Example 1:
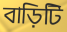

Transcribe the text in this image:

বাড়িটি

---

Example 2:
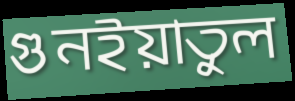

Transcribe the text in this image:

গুনইয়াতুল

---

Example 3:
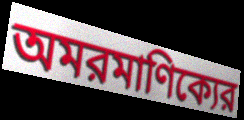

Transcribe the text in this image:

অমরমাণিক্যের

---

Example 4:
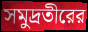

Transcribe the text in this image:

সমুদ্রতীরের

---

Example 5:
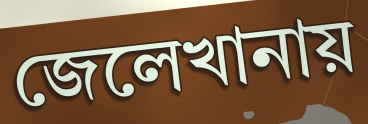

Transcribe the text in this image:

জেলেখানায়